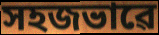
সহজভাৱে